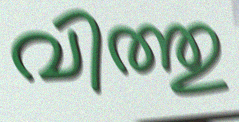
വിത്തു